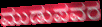
ಮುಡುಪವರ